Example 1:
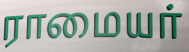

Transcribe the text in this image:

ராமையர்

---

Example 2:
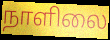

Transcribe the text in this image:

நாளிலை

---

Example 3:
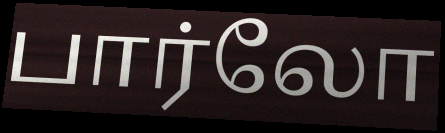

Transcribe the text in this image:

பார்லோ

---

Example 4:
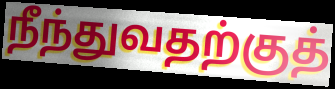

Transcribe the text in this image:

நீந்துவதற்குத்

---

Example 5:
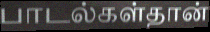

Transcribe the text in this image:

பாடல்கள்தான்